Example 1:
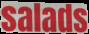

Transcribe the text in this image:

salads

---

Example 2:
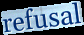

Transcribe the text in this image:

refusal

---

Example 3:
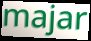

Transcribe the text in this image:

majar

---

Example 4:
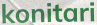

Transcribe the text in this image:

konitari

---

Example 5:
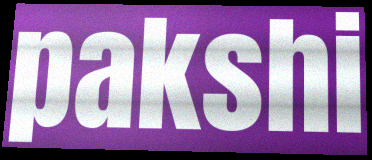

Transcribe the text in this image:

pakshi